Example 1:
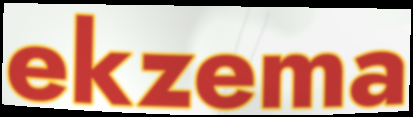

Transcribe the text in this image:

ekzema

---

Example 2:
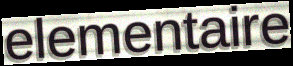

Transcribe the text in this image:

elementaire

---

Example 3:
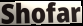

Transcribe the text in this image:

Shofar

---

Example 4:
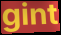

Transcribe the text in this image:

gint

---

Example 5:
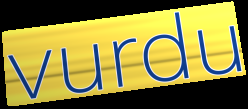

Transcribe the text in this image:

vurdu